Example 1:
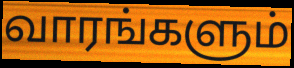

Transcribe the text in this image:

வாரங்களும்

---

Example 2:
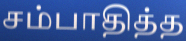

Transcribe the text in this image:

சம்பாதித்த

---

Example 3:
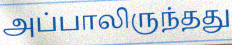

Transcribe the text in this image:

அப்பாலிருந்தது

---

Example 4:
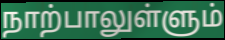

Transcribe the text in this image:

நாற்பாலுள்ளும்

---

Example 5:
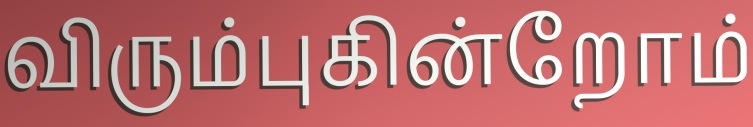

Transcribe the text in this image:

விரும்புகின்றோம்